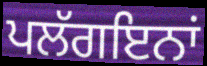
ਪਲੱਗਇਨਾਂ